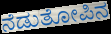
ನೆಡುತೋಪಿನ